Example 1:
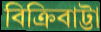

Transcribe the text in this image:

বিক্রিবাট্টা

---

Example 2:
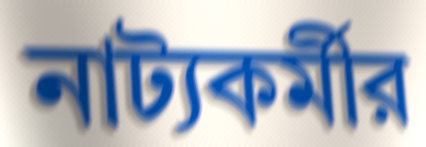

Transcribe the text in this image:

নাট্যকর্মীর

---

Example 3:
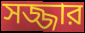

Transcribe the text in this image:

সজ্জার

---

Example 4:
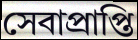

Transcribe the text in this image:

সেবাপ্রাপ্তি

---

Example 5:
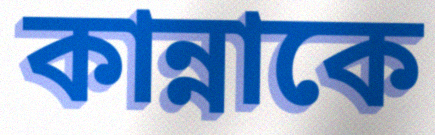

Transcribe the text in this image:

কান্নাকে